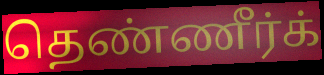
தெண்ணீர்க்